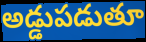
అడ్డుపడుతూ